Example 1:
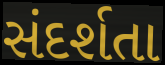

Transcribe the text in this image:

સંદર્શતા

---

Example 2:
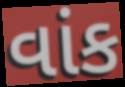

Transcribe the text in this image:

વાંક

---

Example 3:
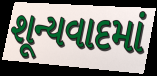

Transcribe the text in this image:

શૂન્યવાદમાં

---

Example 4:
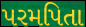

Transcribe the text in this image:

પરમપિતા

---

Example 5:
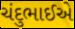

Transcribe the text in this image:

ચંદુભાઈએ